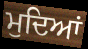
ਮੁਦਿਆਂ